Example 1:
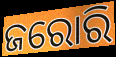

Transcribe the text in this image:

ଜରୋରି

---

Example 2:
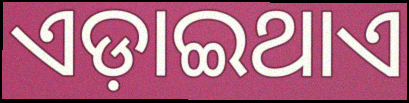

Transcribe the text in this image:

ଏଡ଼ାଇଥାଏ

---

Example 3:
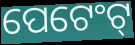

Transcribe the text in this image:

ପେଟେଂଟ୍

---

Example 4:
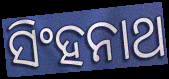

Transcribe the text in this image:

ସିଂହନାଥ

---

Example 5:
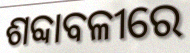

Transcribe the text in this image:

ଶବ୍ଦାବଳୀରେ